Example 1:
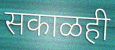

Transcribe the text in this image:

सकाळही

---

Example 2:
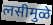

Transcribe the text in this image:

लसीमुळे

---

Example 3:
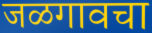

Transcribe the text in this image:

जळगावचा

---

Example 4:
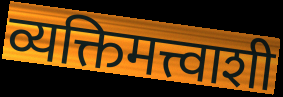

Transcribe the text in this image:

व्यक्तिमत्त्वाशी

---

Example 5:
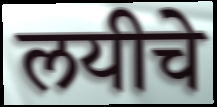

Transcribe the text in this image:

लयीचे